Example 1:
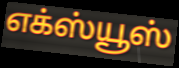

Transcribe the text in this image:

எக்ஸ்யூஸ்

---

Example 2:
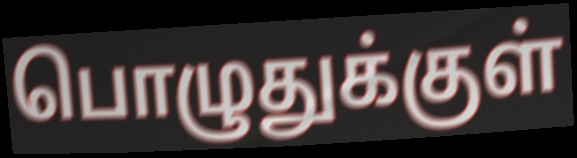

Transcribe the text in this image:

பொழுதுக்குள்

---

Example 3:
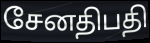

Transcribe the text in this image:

சேனதிபதி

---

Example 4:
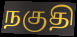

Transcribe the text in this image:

நகுதி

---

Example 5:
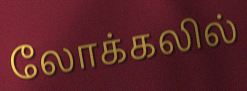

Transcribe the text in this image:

லோக்கலில்